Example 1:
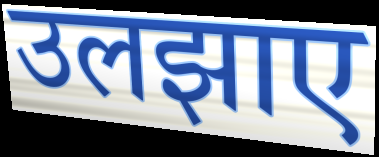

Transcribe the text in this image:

उलझाए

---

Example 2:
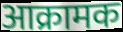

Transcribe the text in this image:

आक्रामक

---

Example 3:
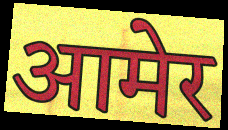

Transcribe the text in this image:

आमेर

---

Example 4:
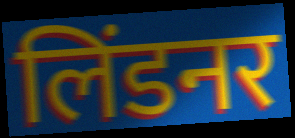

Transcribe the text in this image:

लिंडनर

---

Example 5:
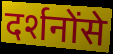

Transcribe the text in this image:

दर्शनोंसे